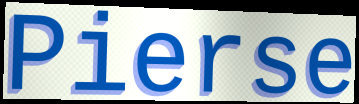
Pierse